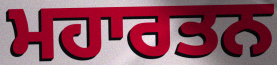
ਮਹਾਰਤਨ